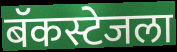
बॅकस्टेजला